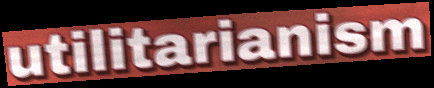
utilitarianism